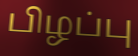
பிழப்பு